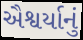
ઐશ્વર્યાનું